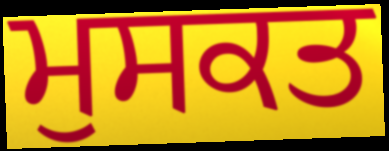
ਮੁਸਕਤ